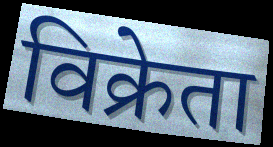
विक्रेता